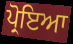
ਪ੍ਰੋਇਆ